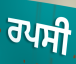
ਰਪਸੀ